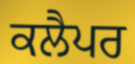
ਕਲੈਪਰ